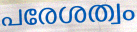
പരേശത്വം